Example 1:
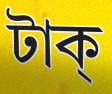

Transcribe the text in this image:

টাক্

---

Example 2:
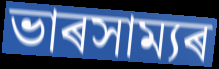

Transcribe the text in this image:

ভাৰসাম্যৰ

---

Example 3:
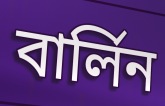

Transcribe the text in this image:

বাৰ্লিন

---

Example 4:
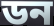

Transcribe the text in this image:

ডন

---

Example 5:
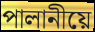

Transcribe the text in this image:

পালানীয়ে